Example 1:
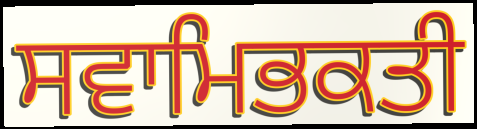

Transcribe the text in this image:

ਸਵਾਮਿਭਕਤੀ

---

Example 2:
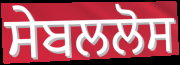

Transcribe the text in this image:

ਸੇਬਲਲੋਸ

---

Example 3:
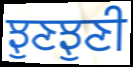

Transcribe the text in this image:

ਝੁਣਝੁਣੀ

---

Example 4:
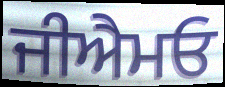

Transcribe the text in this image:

ਜੀਐਮਓ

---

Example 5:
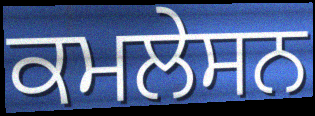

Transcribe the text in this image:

ਕਮਲੇਸਨ